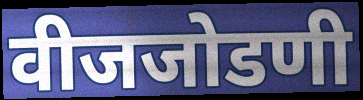
वीजजोडणी